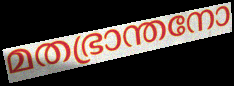
മതഭ്രാന്തനോ